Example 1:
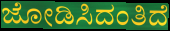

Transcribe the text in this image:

ಜೋಡಿಸಿದಂತಿದೆ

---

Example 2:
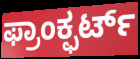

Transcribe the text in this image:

ಫ್ರಾಂಕ್ಫರ್ಟ್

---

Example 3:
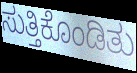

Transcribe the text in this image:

ಸುತ್ತಿಕೊಂಡಿತು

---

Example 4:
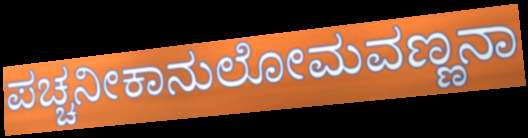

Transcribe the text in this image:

ಪಚ್ಚನೀಕಾನುಲೋಮವಣ್ಣನಾ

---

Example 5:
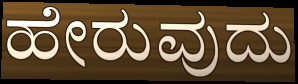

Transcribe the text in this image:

ಹೇರುವುದು